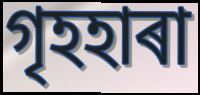
গৃহহাৰা